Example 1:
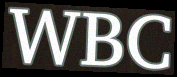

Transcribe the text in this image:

WBC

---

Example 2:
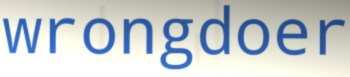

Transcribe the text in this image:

wrongdoer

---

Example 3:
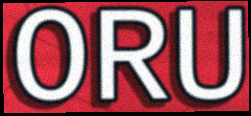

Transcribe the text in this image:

ORU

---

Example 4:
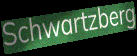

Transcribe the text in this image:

Schwartzberg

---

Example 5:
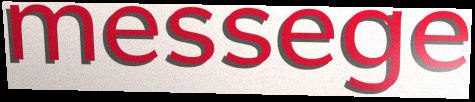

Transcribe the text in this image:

messege